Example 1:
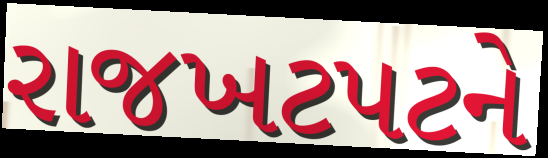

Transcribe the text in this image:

રાજખટપટને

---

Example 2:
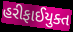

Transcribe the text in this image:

હરીફાઈયુક્ત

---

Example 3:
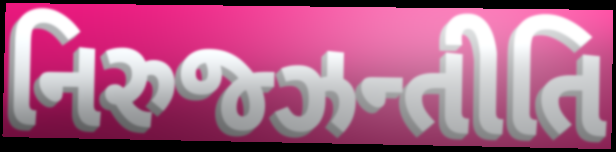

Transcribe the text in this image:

નિરુજ્ઝન્તીતિ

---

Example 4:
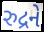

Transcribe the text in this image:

રુદ્રને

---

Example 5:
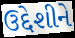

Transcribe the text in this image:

ઉદ્દેશીને